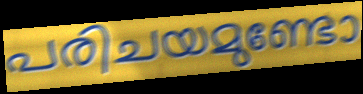
പരിചയമുണ്ടോ